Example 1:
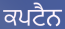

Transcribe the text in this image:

ਕਪਟੈਨ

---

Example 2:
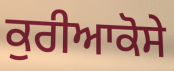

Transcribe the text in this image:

ਕੁਰੀਆਕੋਸੇ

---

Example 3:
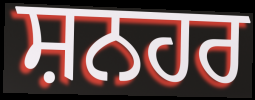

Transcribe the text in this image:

ਸ਼ਨਹਰ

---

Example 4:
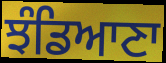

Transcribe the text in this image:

ਝੰਡਿਆਣਾ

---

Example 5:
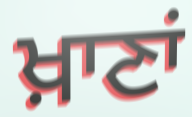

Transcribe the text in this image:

ਖ਼ਾਣਾਂ